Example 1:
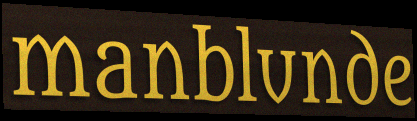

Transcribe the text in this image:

manblunde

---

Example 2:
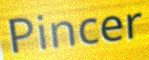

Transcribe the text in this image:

Pincer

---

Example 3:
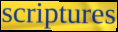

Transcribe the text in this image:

scriptures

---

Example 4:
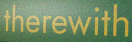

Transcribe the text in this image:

therewith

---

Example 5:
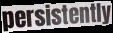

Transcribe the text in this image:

persistently